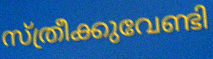
സ്ത്രീക്കുവേണ്ടി